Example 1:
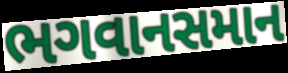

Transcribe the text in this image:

ભગવાનસમાન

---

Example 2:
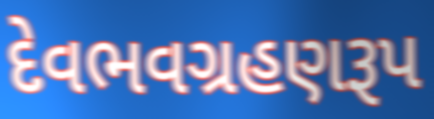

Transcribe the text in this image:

દેવભવગ્રહણરૂપ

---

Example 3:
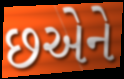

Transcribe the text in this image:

છએને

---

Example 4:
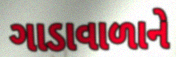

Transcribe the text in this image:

ગાડાવાળાને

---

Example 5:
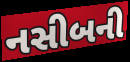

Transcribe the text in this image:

નસીબની